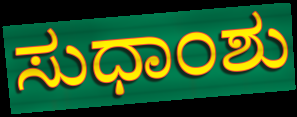
ಸುಧಾಂಶು